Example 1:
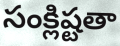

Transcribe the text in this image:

సంక్లిష్టతా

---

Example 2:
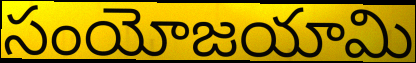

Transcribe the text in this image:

సంయోజయామి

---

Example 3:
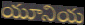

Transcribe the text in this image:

యూనియ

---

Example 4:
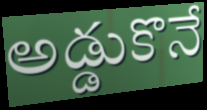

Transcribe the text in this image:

అడ్డుకొనే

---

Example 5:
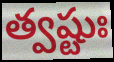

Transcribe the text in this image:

త్వష్టుః